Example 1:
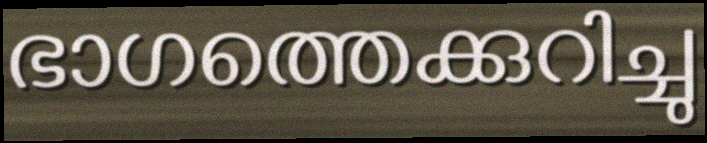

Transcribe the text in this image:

ഭാഗത്തെക്കുറിച്ചു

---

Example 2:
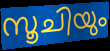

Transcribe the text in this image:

സൂചിയും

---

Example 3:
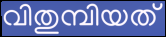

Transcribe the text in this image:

വിതുമ്പിയത്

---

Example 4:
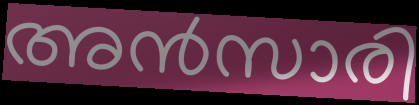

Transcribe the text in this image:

അൻസാരി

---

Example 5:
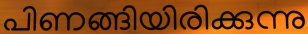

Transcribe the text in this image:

പിണങ്ങിയിരിക്കുന്നു